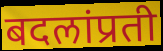
बदलांप्रती